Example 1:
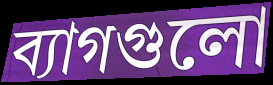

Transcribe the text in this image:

ব্যাগগুলো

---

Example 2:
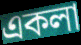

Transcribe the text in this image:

একলা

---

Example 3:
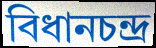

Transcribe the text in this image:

বিধানচন্দ্র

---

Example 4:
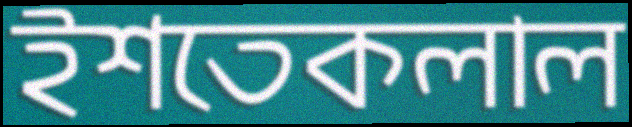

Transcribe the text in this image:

ইশতেকলাল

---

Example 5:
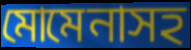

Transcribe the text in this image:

মোমেনাসহ